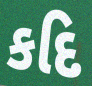
કદિ